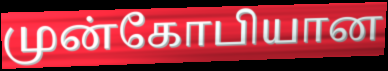
முன்கோபியான